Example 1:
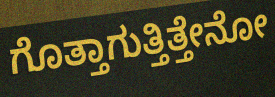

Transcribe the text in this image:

ಗೊತ್ತಾಗುತ್ತಿತ್ತೇನೋ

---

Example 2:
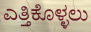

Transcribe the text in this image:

ಎತ್ತಿಕೊಳ್ಳಲು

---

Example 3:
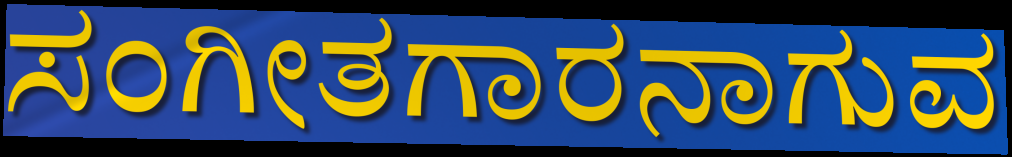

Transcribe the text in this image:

ಸಂಗೀತಗಾರನಾಗುವ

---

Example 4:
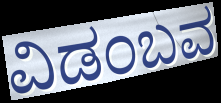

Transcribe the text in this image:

ವಿಡಂಬವ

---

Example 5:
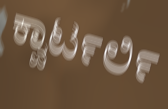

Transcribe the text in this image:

ಕ್ವಾರ್ಟರ್ಲಿ